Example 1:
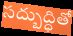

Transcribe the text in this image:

సద్బుద్ధితో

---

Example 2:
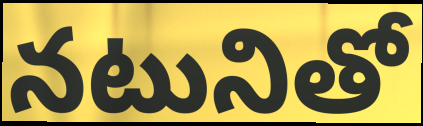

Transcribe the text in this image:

నటునితో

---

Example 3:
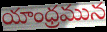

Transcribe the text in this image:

యాంధ్రమున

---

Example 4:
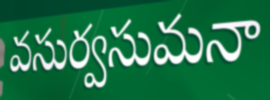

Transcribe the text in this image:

వసుర్వసుమనా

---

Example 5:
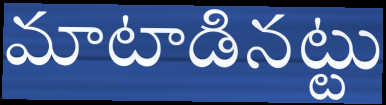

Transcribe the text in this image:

మాటాడినట్టు